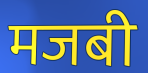
मजबी